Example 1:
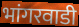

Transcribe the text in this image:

भांगरवाडी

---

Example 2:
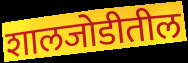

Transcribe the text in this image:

शालजोडीतील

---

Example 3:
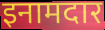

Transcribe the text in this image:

इनामदार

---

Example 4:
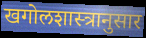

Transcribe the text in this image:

खगोलशास्त्रानुसार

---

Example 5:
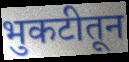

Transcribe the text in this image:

भुकटीतून